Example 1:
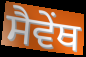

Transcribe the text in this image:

ਸੈਵੇਂਥ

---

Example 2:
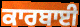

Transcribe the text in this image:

ਕਾਰਬਾਈ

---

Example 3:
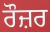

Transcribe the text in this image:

ਰੌਜ਼ਰ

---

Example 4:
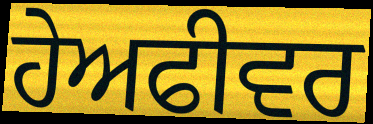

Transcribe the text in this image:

ਹੇਅਫੀਵਰ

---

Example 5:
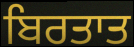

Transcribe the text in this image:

ਬਿਰਤਾਤ